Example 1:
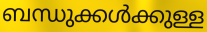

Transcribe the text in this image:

ബന്ധുക്കൾക്കുള്ള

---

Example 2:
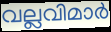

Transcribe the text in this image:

വല്ലവിമാർ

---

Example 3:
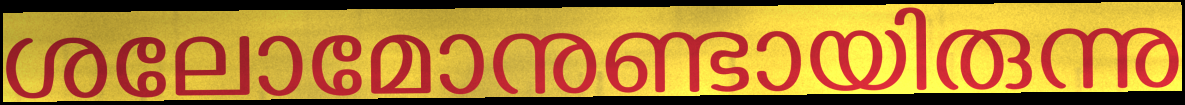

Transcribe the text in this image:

ശലോമോനുണ്ടായിരുന്നു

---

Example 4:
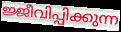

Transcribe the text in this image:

ജ്ജീവിപ്പിക്കുന്ന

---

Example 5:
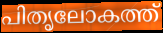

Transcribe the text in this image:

പിതൃലോകത്ത്